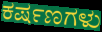
ಕರ್ಷಣಗಳು